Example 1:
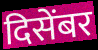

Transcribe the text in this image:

दिसेंबर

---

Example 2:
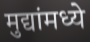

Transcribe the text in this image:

मुद्यांमध्ये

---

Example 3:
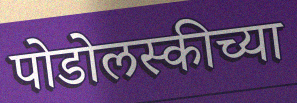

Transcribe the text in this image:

पोडोलस्कीच्या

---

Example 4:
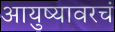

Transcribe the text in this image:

आयुष्यावरचं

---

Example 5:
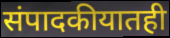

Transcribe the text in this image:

संपादकीयातही